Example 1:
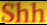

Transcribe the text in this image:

Shh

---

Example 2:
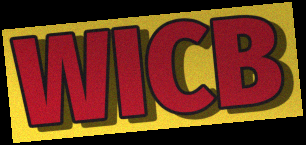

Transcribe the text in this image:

WICB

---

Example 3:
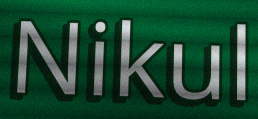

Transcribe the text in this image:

Nikul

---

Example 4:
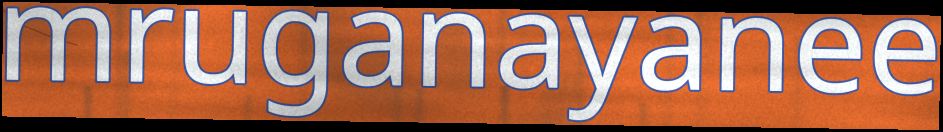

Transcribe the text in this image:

mruganayanee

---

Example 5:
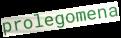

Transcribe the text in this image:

prolegomena